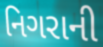
નિગરાની